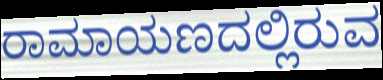
ರಾಮಾಯಣದಲ್ಲಿರುವ